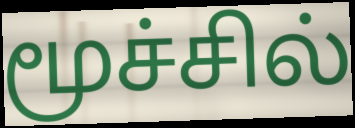
மூச்சில்